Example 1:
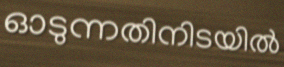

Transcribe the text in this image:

ഓടുന്നതിനിടയിൽ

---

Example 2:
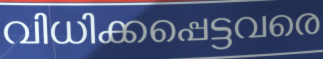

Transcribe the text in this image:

വിധിക്കപ്പെട്ടവരെ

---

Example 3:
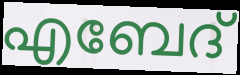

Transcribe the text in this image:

എബേദ്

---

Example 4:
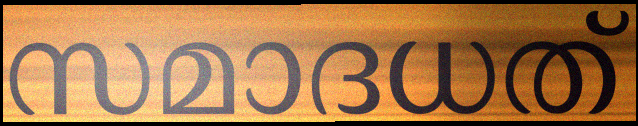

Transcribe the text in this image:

സമാദധത്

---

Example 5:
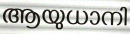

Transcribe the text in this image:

ആയുധാനി